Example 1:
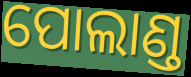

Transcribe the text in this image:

ପୋଲାଣ୍ଡ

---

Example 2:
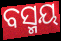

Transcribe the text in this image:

ବସ୍ମୟ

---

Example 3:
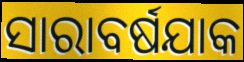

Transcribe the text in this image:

ସାରାବର୍ଷଯାକ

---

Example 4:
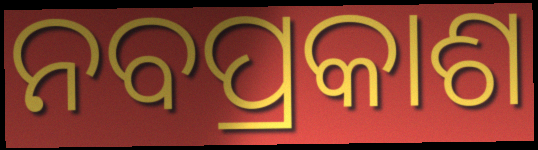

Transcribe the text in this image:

ନବପ୍ରକାଶ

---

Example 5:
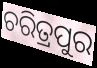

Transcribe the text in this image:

ଚରିତ୍ରପୁର